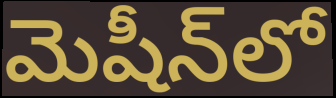
మెషీన్‌లో